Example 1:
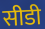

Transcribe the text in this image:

सीडी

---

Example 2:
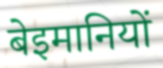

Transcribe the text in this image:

बेइमानियों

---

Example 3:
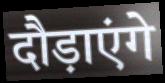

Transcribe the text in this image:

दौड़ाएंगे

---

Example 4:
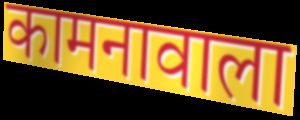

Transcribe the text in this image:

कामनावाला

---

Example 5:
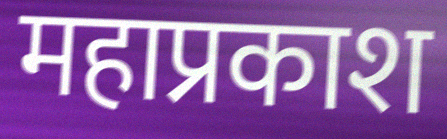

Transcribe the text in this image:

महाप्रकाश